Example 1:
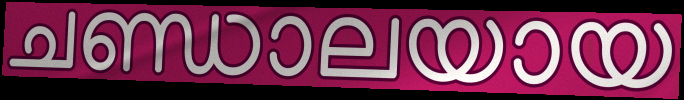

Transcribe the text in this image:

ചണ്ഡാലയായ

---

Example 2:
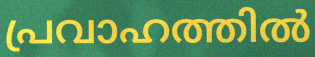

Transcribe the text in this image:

പ്രവാഹത്തിൽ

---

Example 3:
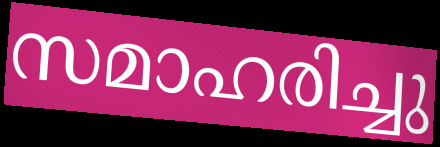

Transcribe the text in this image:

സമാഹരിച്ചു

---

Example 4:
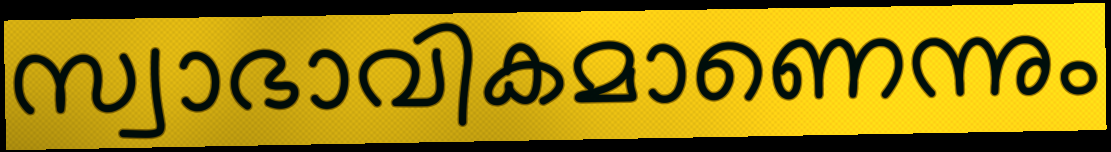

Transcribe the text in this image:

സ്വാഭാവികമാണെന്നും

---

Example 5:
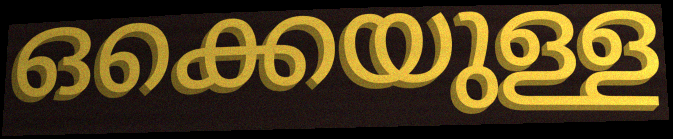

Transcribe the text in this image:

ഒക്കെയുള്ള